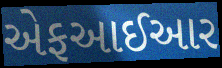
એફઆઈઆર